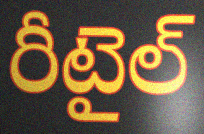
రీటైల్